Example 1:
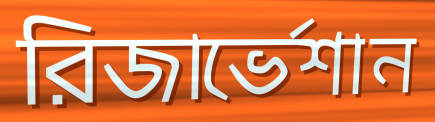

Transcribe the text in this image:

রিজার্ভেশান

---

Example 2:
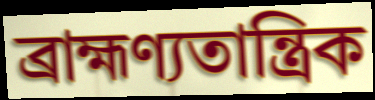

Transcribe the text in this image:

ব্রাহ্মণ্যতান্ত্রিক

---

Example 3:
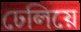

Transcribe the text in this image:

ঢেলিয়ে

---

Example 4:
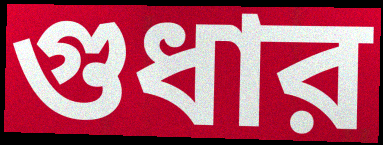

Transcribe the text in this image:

গুধার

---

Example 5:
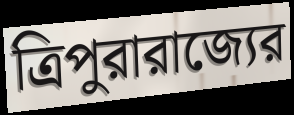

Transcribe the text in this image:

ত্রিপুরারাজ্যের